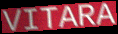
VITARA